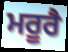
ਮਰੂਰੈ